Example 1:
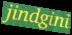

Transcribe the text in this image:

jindgini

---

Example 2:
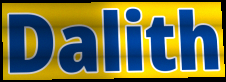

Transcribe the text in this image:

Dalith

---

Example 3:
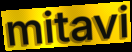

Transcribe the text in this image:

mitavi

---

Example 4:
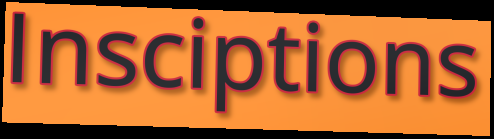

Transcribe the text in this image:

Insciptions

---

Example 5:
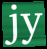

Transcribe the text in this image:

jy